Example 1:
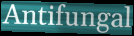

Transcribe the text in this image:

Antifungal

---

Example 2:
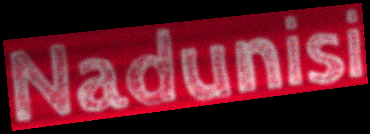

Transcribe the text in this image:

Nadunisi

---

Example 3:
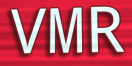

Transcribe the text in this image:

VMR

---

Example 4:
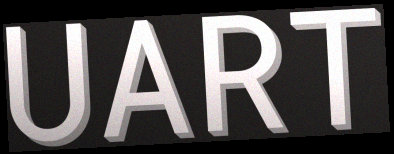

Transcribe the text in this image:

UART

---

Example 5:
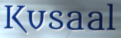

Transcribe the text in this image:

Kusaal